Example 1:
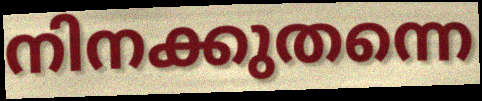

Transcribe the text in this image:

നിനക്കുതന്നെ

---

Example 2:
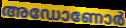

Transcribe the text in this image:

അഡോണോർ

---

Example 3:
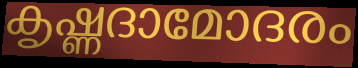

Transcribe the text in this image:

കൃഷ്ണദാമോദരം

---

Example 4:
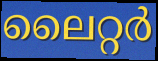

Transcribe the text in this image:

ലൈറ്റർ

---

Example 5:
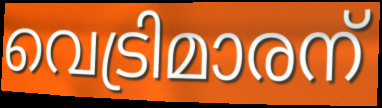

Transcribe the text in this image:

വെട്രിമാരന്